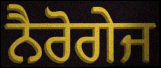
ਨੈਰੋਗੇਜ